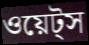
ওয়েট্স